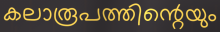
കലാരൂപത്തിന്റെയും